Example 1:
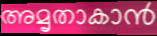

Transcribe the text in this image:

അമൃതാകാൻ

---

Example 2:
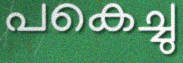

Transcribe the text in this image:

പകെച്ചു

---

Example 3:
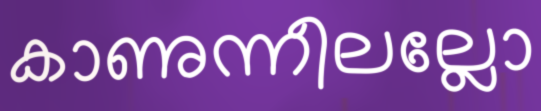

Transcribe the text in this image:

കാണുന്നീലല്ലോ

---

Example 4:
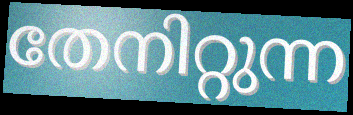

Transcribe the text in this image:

തേനിറ്റുന്ന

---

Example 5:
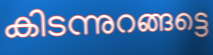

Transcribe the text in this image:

കിടന്നുറങ്ങട്ടെ